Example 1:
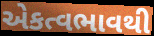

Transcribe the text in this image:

એકત્વભાવથી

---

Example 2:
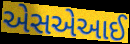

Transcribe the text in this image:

એસએઆઈ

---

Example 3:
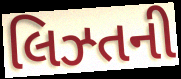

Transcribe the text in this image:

લિઝ્તની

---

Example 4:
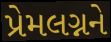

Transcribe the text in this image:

પ્રેમલગ્નને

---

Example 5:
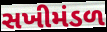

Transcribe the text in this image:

સખીમંડળ